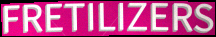
FRETILIZERS